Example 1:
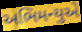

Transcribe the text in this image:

અભિમન્યુએ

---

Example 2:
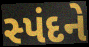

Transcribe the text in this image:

સ્પંદને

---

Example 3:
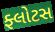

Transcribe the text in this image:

ફ્લોટસ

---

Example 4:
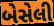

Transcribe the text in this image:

બેસેલી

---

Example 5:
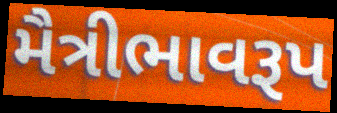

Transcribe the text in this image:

મૈત્રીભાવરૂપ